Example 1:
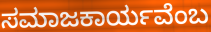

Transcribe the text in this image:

ಸಮಾಜಕಾರ್ಯವೆಂಬ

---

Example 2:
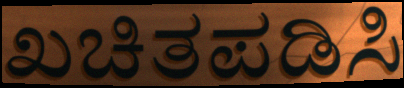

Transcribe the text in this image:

ಖಚಿತಪಡಿಸಿ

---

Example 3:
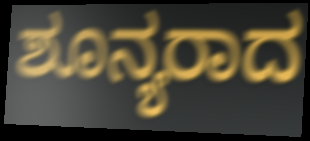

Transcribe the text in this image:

ಶೂನ್ಯರಾದ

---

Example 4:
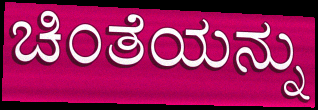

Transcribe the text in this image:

ಚಿಂತೆಯನ್ನು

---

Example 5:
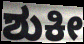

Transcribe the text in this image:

ಶುಕೀ